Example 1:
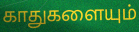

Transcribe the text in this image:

காதுகளையும்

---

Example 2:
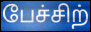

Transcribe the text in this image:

பேச்சிற்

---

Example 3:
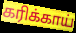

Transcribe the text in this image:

கரிக்காய்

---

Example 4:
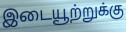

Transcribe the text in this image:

இடையூற்றுக்கு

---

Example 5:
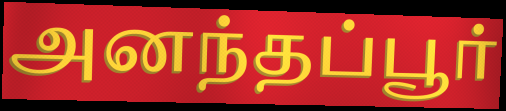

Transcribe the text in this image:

அனந்தப்பூர்